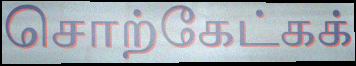
சொற்கேட்கக்